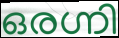
ഒരഗ്നി